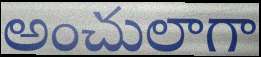
అంచులాగా